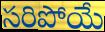
సరిపోయే